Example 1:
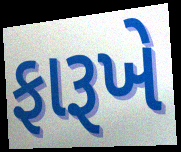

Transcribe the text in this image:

ફારૂખે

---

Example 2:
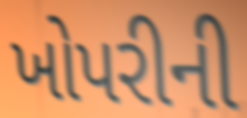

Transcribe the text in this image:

ખોપરીની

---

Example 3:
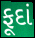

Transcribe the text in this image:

ફૂદાં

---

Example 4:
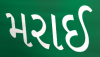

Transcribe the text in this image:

મરાઈ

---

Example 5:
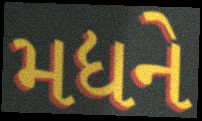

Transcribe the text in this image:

મદ્યને